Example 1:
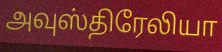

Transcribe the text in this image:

அவுஸ்திரேலியா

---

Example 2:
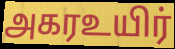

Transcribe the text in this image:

அகரஉயிர்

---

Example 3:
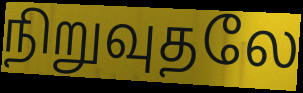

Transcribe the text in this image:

நிறுவுதலே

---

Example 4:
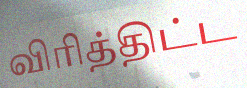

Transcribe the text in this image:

விரித்திட்ட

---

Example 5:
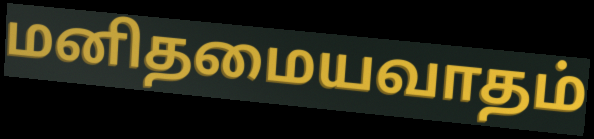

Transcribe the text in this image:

மனிதமையவாதம்